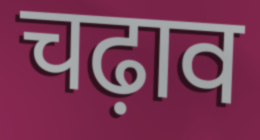
चढ़ाव